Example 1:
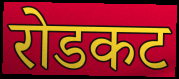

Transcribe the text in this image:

रोडकट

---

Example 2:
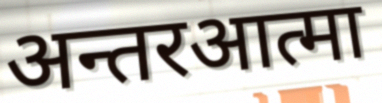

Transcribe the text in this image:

अन्तरआत्मा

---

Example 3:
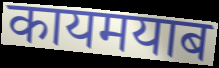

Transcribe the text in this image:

कायमयाब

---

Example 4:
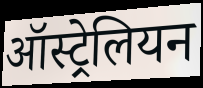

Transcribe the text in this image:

ऑस्ट्रेलियन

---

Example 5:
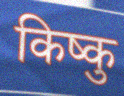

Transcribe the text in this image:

किष्कु